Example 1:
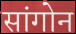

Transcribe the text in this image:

सांगोन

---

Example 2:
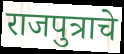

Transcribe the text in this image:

राजपुत्राचे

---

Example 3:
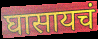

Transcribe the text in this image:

घासायचं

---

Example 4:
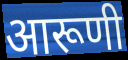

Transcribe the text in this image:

आरूणी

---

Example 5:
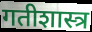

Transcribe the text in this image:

गतीशास्त्र